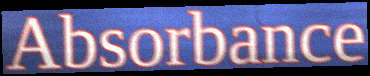
Absorbance